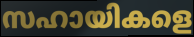
സഹായികളെ